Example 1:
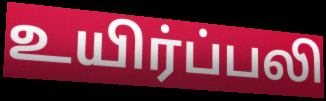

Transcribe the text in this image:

உயிர்ப்பலி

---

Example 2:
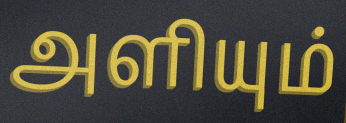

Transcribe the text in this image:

அளியும்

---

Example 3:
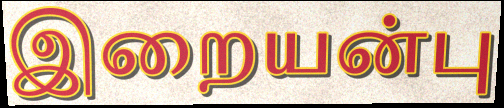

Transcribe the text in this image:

இறையன்பு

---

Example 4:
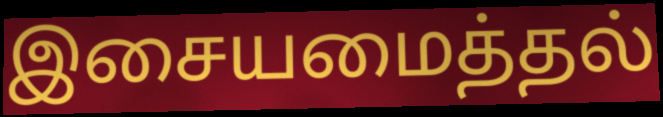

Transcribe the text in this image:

இசையமைத்தல்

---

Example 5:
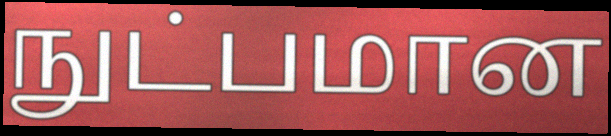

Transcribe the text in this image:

நுட்பமான